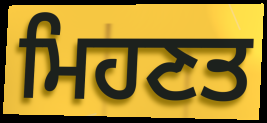
ਮਿਹਣਤ